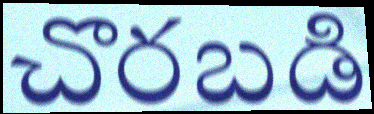
చొరబడి